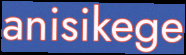
anisikege